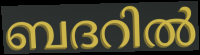
ബദറിൽ